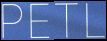
PETL